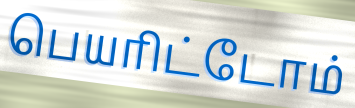
பெயரிட்டோம்